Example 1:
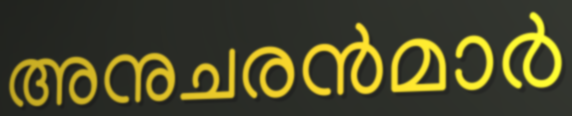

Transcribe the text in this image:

അനുചരൻമാർ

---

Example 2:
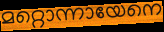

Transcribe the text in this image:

മറ്റൊന്നായേനെ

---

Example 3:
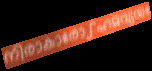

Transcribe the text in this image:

നിരാകാരോഽഹമവ്യയഃ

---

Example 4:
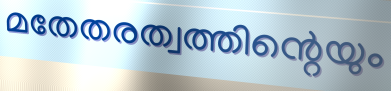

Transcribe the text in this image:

മതേതരത്വത്തിന്റെയും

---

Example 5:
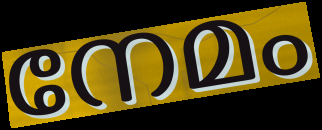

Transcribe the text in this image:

നേമം